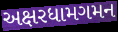
અક્ષરધામગમન